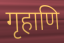
गृहाणि